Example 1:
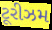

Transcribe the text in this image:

ટૂરીઝમ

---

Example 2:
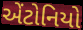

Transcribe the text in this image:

એંટોનિયો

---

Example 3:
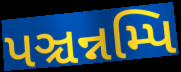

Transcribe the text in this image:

પઞ્ચન્નમ્પિ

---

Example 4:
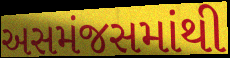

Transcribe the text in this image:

અસમંજસમાંથી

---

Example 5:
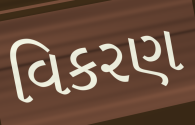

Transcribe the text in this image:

વિકરણ